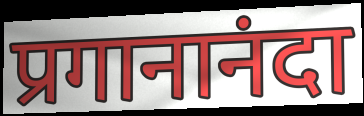
प्रगानानंदा